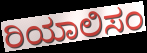
ರಿಯಾಲಿಸಂ